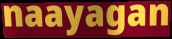
naayagan